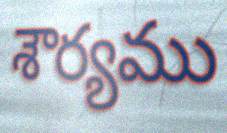
శౌర్యము